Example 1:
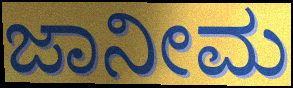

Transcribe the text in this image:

ಜಾನೀಮ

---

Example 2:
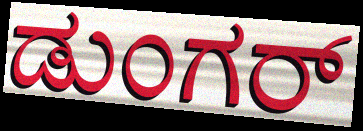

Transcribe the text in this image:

ಡುಂಗರ್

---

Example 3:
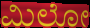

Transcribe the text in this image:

ಮಿಲೋ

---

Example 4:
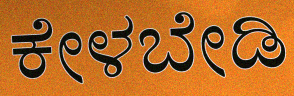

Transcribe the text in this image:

ಕೇಳಬೇಡಿ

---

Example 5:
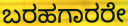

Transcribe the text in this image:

ಬರಹಗಾರರೇ